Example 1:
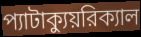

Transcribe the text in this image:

প্যাটাক্যুয়রিক্যাল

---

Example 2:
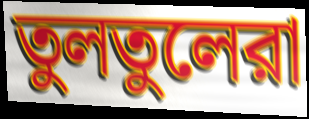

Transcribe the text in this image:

তুলতুলেরা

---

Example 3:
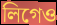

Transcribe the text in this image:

লিগেও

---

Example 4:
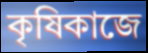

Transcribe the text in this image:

কৃষিকাজে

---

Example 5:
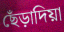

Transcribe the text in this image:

ছেঁড়াদিয়া